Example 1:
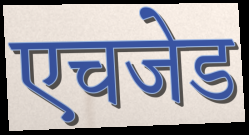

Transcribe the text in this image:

एचजेड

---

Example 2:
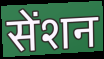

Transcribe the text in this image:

सेंशन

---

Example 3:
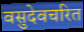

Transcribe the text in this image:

वसुदेवचरित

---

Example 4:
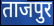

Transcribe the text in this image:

ताजपुर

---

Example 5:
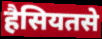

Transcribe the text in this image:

हैसियतसे